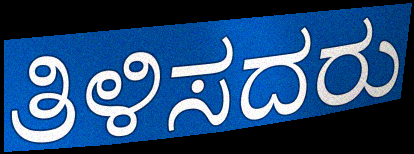
ತಿಳಿಸದರು